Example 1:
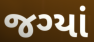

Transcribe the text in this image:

જગ્યાં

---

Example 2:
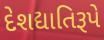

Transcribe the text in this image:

દેશદ્યાતિરૂપે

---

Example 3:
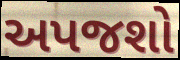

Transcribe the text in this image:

અપજશો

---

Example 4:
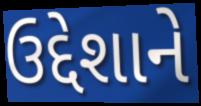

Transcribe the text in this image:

ઉદ્દેશાને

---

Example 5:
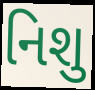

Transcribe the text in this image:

નિશુ